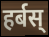
हर्बस्